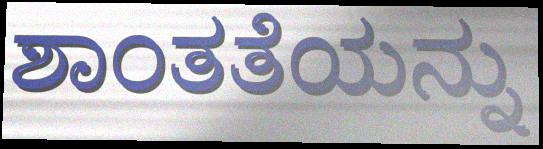
ಶಾಂತತೆಯನ್ನು